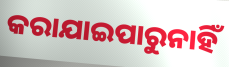
କରାଯାଇପାରୁନାହିଁ